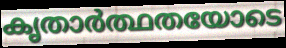
കൃതാർത്ഥതയോടെ